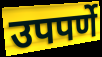
उपपर्णे